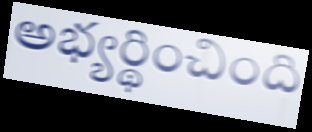
అభ్యర్థించింది